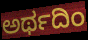
ಅರ್ಥದಿಂ